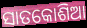
ସାତକୋଶିଆ